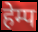
हेम्प